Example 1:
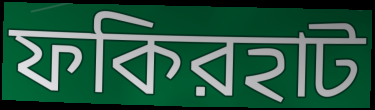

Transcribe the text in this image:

ফকিরহাট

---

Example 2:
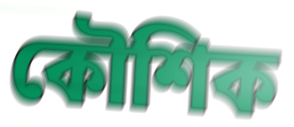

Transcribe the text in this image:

কৌশিক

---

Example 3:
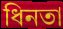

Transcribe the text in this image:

ধিনতা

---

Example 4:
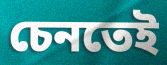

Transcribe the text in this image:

চেনতেই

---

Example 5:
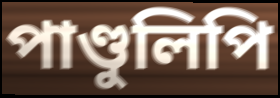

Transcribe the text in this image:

পাণ্ডুলিপি